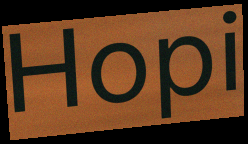
Hopi